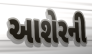
આશેરની